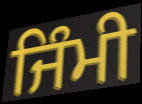
ਜਿੰਮੀ